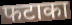
फटाका